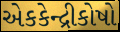
એકકેન્દ્રીકોષો